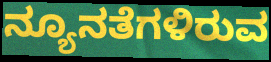
ನ್ಯೂನತೆಗಳಿರುವ